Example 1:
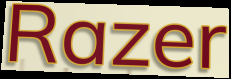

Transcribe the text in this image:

Razer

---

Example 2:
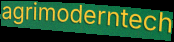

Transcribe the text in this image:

agrimoderntech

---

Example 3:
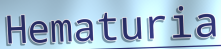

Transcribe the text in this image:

Hematuria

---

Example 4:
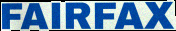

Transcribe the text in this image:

FAIRFAX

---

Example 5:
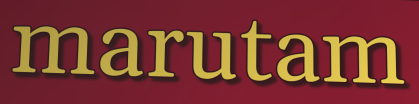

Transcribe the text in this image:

marutam